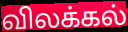
விலக்கல்